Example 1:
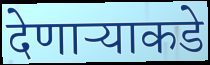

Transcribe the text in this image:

देणाऱ्याकडे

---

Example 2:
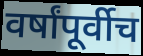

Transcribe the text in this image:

वर्षांपूर्वीच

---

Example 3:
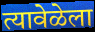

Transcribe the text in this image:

त्यावेळेला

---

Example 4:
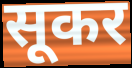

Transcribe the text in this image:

सूकर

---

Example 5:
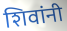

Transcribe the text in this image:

शिवांनी